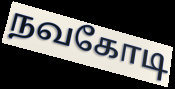
நவகோடி